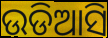
ଉଡିଆସି